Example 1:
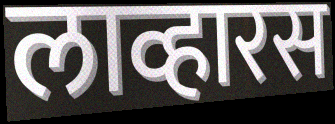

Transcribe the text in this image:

लाव्हारस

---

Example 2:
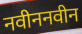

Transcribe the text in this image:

नवीननवीन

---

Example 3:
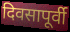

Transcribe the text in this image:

दिवसापूर्वी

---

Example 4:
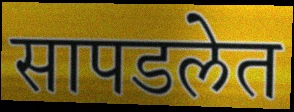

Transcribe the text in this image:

सापडलेत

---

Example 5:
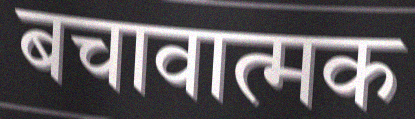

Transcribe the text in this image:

बचावात्मक